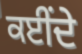
ਕਈਂਦੇ